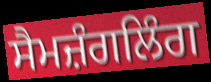
ਸੈਮਜ਼ੰਗਲਿੰਗ